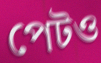
পেটও